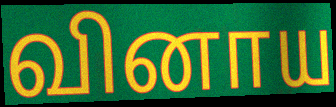
வினாய